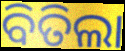
ବିତିଲା